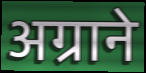
अग्राने